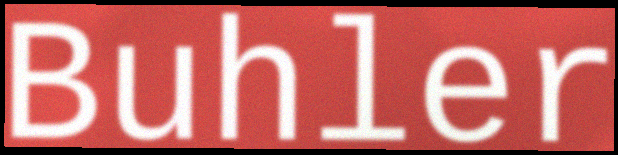
Buhler